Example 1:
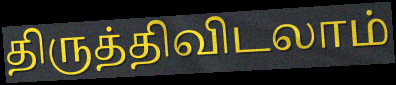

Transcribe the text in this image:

திருத்திவிடலாம்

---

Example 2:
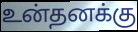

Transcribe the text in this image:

உன்தனக்கு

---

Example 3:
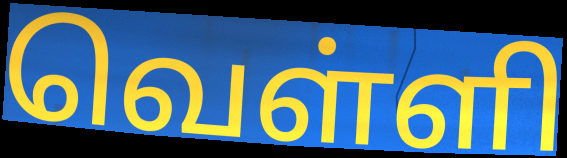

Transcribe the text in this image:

வெள்ளி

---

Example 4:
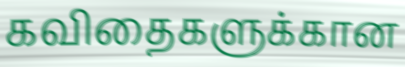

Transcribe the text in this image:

கவிதைகளுக்கான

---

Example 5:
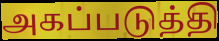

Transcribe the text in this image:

அகப்படுத்தி